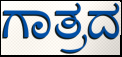
ಗಾತ್ರದ